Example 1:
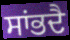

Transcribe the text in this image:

ਸਾਂਭਦੈ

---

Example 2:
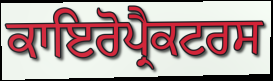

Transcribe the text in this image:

ਕਾਇਰੋਪ੍ਰੈਕਟਰਸ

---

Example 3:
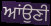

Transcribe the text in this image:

ਆਂਉਣੀ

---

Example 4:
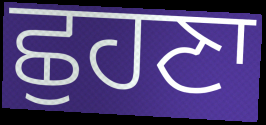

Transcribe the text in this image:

ਛੁਹਣਾ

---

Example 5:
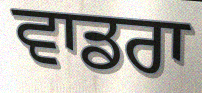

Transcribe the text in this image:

ਵਾਡਰਾ